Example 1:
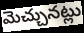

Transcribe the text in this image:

మెచ్చునట్లు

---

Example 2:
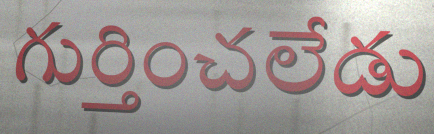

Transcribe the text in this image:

గుర్తించలేడు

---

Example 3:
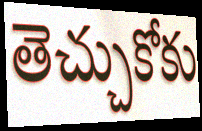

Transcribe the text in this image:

తెచ్చుకోకు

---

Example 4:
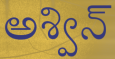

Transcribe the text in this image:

అశ్విన్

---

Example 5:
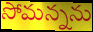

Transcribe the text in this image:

సోమన్నను